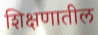
शिक्षणातील